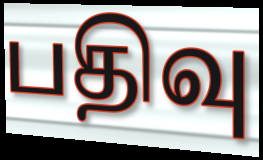
பதிவு